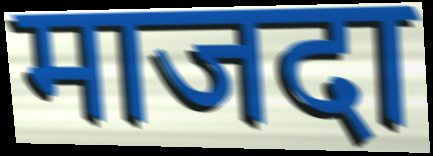
माजदा